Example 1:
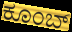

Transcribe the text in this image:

ಕೂಂಬ್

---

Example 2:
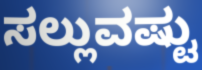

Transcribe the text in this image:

ಸಲ್ಲುವಷ್ಟು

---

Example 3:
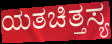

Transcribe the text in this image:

ಯತಚಿತ್ತಸ್ಯ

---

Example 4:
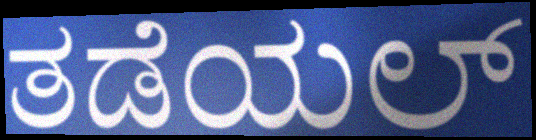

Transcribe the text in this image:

ತಡೆಯಲ್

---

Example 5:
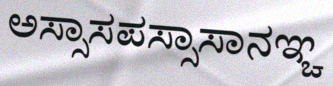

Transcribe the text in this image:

ಅಸ್ಸಾಸಪಸ್ಸಾಸಾನಞ್ಚ